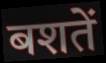
बशतें